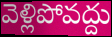
వెళ్లిపోవద్దు